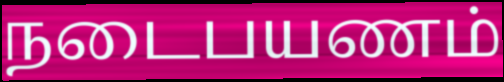
நடைபயணம்